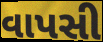
વાપસી